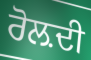
ਰੋਲ਼ਦੀ